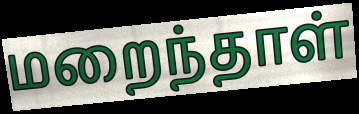
மறைந்தாள்